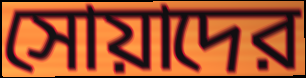
সোয়াদের